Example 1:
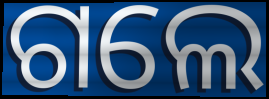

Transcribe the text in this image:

ଗଲେ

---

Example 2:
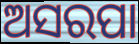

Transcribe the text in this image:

ଅସରପା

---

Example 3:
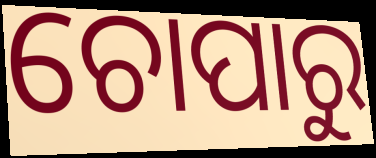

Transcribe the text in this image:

ଚୋପାରୁ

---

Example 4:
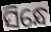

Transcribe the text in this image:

ସିନ୍ଧେ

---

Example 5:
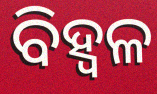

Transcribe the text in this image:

ବିହ୍ଵଳ